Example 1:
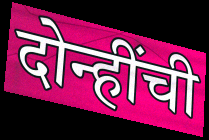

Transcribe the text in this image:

दोन्हींची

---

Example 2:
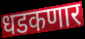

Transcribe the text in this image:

धडकणार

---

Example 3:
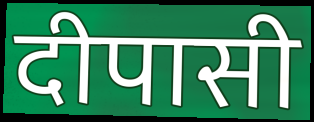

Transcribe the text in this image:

दीपासी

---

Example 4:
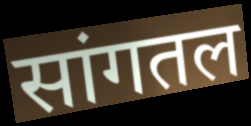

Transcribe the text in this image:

सांगतल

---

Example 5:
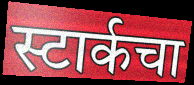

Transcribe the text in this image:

स्टार्कचा